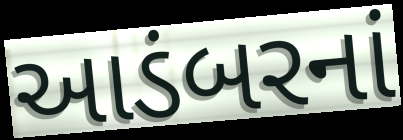
આડંબરનાં